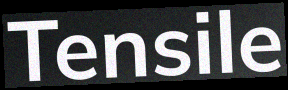
Tensile